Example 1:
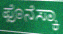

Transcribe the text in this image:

ಫೊನೆಸ್ಕಾ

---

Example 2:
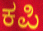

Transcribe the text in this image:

ಕಪಿ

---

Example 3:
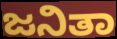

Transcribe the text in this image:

ಜನಿತಾ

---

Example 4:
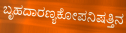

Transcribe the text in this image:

ಬೃಹದಾರಣ್ಯಕೋಪನಿಷತ್ತಿನ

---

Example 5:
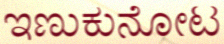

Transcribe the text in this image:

ಇಣುಕುನೋಟ